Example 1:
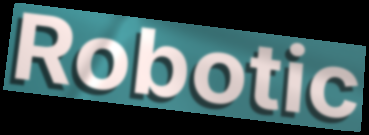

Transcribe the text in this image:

Robotic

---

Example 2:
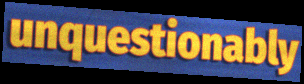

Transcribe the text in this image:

unquestionably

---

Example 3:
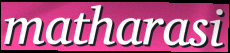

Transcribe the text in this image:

matharasi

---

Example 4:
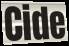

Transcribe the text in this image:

Cide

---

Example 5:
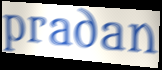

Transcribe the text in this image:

pradan